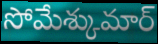
సోమేశ్కుమార్